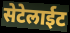
सेटेलाईट